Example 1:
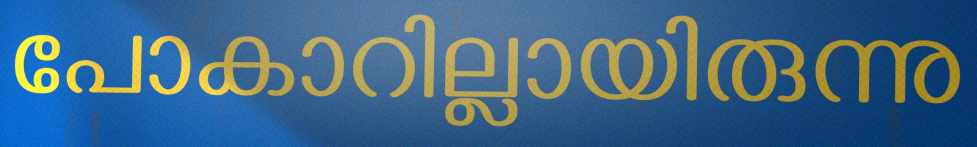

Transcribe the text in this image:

പോകാറില്ലായിരുന്നു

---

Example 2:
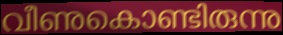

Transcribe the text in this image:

വീണുകൊണ്ടിരുന്നു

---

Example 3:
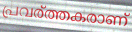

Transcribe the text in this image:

പ്രവര്ത്തകരാണ്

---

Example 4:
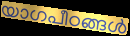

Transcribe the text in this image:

യാഗപീഠങ്ങൾ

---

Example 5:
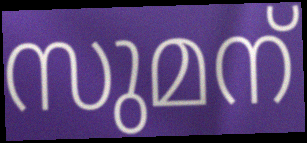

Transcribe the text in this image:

സുമന്